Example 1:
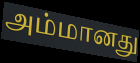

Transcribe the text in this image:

அம்மானது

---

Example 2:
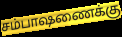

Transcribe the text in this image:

சம்பாஷணைக்கு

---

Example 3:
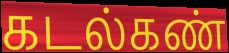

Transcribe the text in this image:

கடல்கண்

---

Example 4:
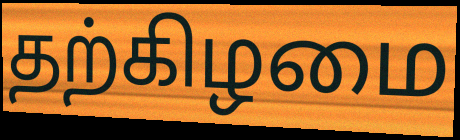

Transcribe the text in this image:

தற்கிழமை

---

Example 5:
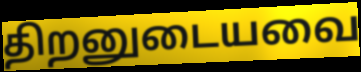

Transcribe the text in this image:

திறனுடையவை